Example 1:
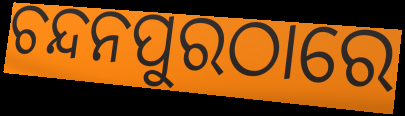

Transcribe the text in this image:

ଚନ୍ଦନପୁରଠାରେ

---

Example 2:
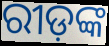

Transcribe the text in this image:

ରୀଡ଼ଙ୍କ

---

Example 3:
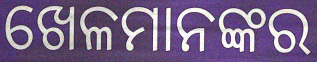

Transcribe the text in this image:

ଖେଳମାନଙ୍କର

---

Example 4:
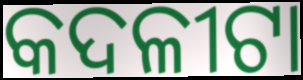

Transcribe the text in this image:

କଦଳୀଟା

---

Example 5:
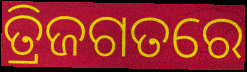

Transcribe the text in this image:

ତ୍ରିଜଗତରେ